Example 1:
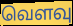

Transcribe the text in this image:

வெளவு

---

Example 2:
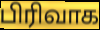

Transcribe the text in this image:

பிரிவாக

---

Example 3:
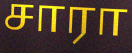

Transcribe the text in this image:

சாரா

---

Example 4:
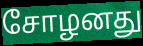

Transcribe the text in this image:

சோழனது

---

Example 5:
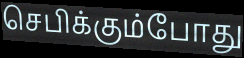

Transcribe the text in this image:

செபிக்கும்போது